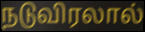
நடுவிரலால்